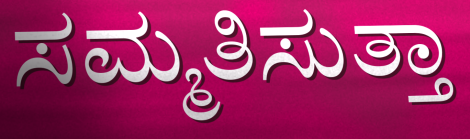
ಸಮ್ಮತಿಸುತ್ತಾ